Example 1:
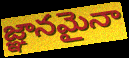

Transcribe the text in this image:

జ్ఞానమైనా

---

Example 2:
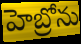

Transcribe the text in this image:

హెబ్రోను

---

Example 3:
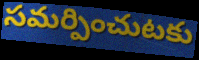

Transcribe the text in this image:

సమర్పించుటకు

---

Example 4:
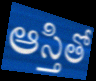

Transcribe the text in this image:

ఆస్తితో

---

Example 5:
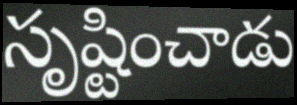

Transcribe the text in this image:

సృష్టించాడు